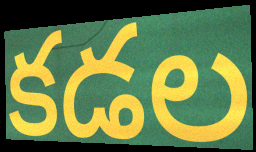
కడల